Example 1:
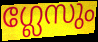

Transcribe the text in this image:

ഗ്ലേസും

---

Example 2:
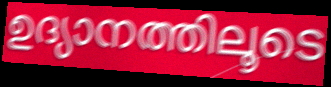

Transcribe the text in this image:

ഉദ്യാനത്തിലൂടെ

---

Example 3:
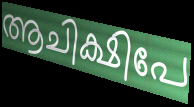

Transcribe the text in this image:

ആചിക്ഷിപേ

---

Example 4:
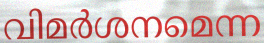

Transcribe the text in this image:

വിമർശനമെന്ന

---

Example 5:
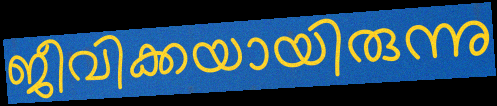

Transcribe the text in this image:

ജീവിക്കയായിരുന്നു